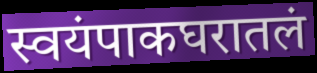
स्वयंपाकघरातलं